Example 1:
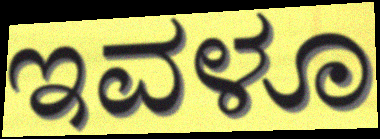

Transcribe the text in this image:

ಇವಳೂ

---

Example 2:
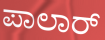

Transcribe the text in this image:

ಪಾಲಾರ್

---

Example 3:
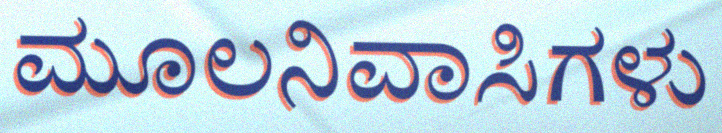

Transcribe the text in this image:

ಮೂಲನಿವಾಸಿಗಳು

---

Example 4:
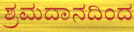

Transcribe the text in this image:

ಶ್ರಮದಾನದಿಂದ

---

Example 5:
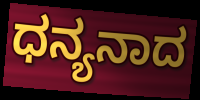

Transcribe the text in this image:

ಧನ್ಯನಾದ